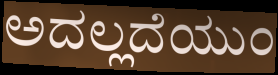
ಅದಲ್ಲದೆಯುಂ